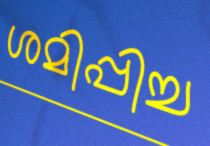
ശമിപ്പിച്ച